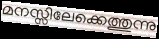
മനസ്സിലേക്കെത്തുന്നു